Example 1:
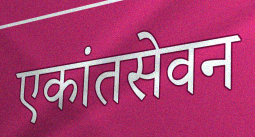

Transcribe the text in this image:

एकांतसेवन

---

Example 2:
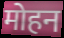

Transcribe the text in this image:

मोहन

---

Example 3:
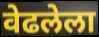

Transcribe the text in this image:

वेढलेला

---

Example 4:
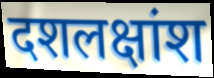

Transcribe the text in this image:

दशलक्षांश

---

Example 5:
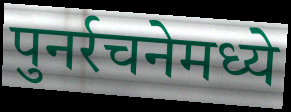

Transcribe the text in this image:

पुनर्रचनेमध्ये